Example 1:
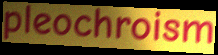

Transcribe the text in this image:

pleochroism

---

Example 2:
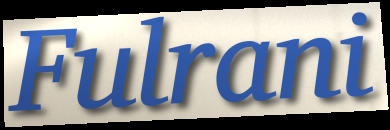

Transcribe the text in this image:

Fulrani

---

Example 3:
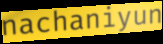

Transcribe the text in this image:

nachaniyun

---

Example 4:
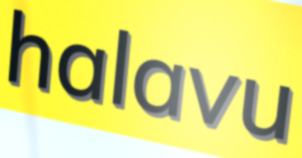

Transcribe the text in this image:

halavu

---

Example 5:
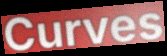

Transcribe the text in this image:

Curves